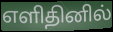
எளிதினில்